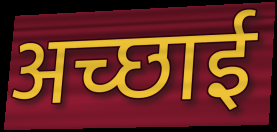
अच्छाई